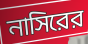
নাসিরের